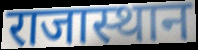
राजास्थान